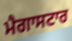
ਮੈਗਾਸਟਾਰ